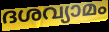
ദശവ്യാമം